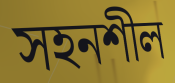
সহনশীল